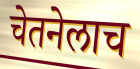
चेतनेलाच